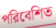
পরিবেশিত